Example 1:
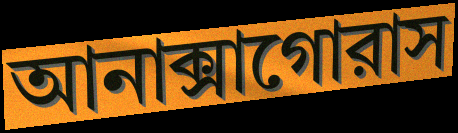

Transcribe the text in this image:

আনাক্সাগোরাস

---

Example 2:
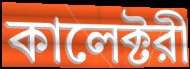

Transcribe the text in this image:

কালেক্টরী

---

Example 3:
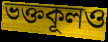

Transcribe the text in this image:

ভক্তকূলও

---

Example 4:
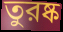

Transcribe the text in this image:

তুরষ্ক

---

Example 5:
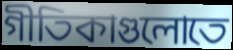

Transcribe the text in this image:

গীতিকাগুলোতে